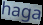
haga